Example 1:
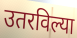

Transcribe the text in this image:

उतरविल्या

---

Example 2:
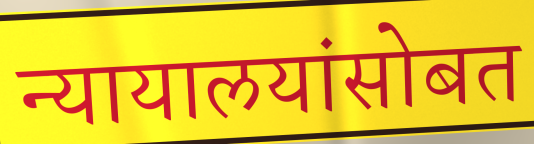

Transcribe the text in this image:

न्यायालयांसोबत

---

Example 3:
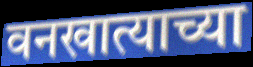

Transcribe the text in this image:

वनखात्याच्या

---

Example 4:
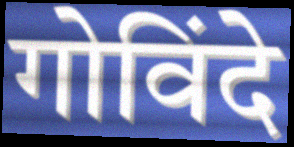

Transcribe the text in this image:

गोविंदे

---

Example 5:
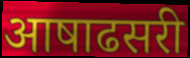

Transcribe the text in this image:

आषाढसरी